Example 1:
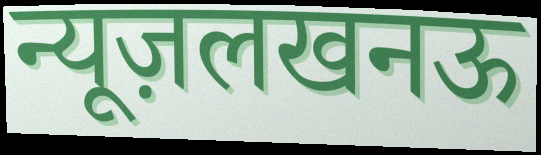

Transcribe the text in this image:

न्यूज़लखनऊ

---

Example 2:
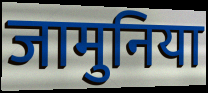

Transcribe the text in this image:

जामुनिया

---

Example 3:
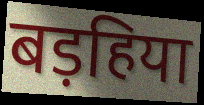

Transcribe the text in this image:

बड़हिया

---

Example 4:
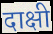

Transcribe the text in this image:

दाक्षी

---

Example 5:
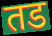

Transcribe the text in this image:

तड